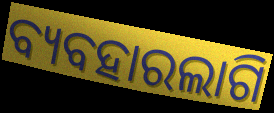
ବ୍ୟବହାରଲାଗି